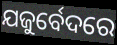
ଯଜୁର୍ବେଦରେ